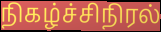
நிகழ்ச்சிநிரல்